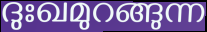
ദുഃഖമുറങ്ങുന്ന